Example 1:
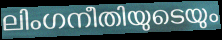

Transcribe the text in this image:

ലിംഗനീതിയുടെയും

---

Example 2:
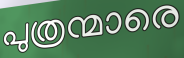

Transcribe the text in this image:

പുത്രന്മാരെ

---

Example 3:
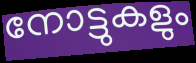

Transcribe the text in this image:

നോട്ടുകളും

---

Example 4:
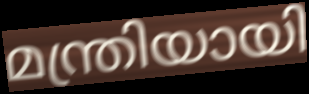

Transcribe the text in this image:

മന്ത്രിയായി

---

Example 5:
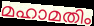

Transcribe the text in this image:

മഹാമതിം